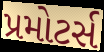
પ્રમોટર્સ